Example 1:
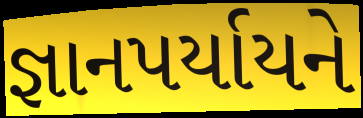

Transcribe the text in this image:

જ્ઞાનપર્યાયને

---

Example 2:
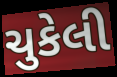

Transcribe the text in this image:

ચુકેલી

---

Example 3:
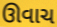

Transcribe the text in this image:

ઊવાચ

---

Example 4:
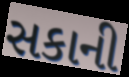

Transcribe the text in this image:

સકાની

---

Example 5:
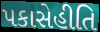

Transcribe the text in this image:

પકાસેહીતિ